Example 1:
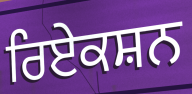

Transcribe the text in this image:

ਰਿਏਕਸ਼ਨ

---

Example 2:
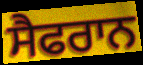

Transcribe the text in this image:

ਸੈਫਰਾਨ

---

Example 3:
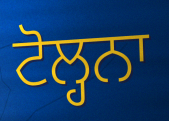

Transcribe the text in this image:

ਟੋਲ੍ਹਨਾ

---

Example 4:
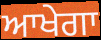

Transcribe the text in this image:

ਆਖੇਗਾ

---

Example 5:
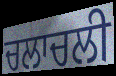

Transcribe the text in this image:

ਚਲਾਚਲੀ